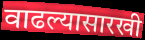
वाढल्यासारखी